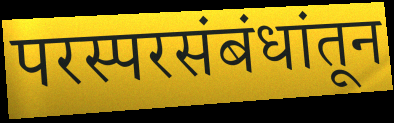
परस्परसंबंधांतून